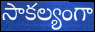
సాకల్యంగా